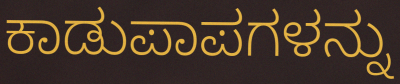
ಕಾಡುಪಾಪಗಳನ್ನು